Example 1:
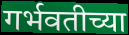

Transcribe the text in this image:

गर्भवतीच्या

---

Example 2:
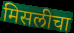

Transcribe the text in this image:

मिसलीचा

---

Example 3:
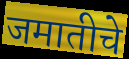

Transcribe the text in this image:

जमातीचे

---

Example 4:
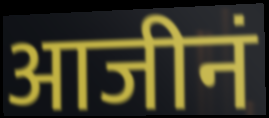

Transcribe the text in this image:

आजीनं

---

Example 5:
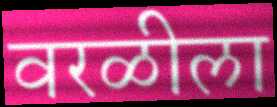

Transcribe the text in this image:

वरळीला